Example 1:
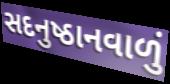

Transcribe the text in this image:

સદનુષ્ઠાનવાળું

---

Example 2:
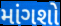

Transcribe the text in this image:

માંગશો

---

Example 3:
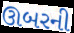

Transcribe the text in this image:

ઊબરની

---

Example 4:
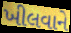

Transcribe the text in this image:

ખીલવાને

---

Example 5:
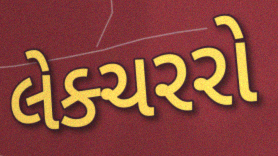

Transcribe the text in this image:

લેક્ચરરો